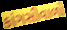
કાંગસીવાળો